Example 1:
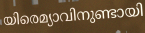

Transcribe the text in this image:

യിരെമ്യാവിനുണ്ടായി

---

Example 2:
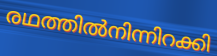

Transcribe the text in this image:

രഥത്തിൽനിന്നിറക്കി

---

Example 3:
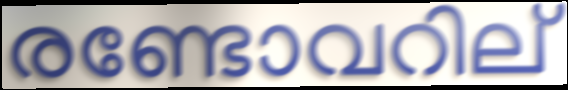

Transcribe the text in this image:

രണ്ടോവറില്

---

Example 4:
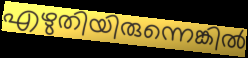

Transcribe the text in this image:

എഴുതിയിരുന്നെങ്കിൽ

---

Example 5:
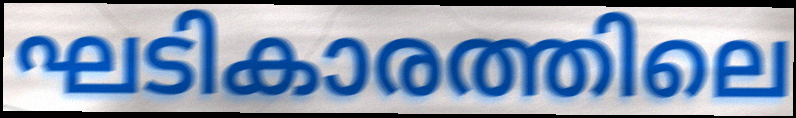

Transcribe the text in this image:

ഘടികാരത്തിലെ